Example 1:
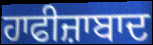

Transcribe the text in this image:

ਹਾਫੀਜ਼ਾਬਾਦ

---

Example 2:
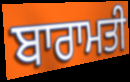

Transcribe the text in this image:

ਬਾਰਾਮਤੀ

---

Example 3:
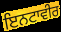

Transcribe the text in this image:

ਇਨਟਾਵੀਰ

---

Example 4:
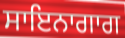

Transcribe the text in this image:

ਸਾਇਨਾਗਾਗ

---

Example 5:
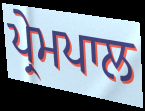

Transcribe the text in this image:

ਪ੍ਰੇਮਪਾਲ